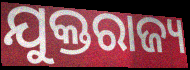
ଯୁକ୍ତରାଜ୍ୟ